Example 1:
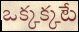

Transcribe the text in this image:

ఒక్కక్కటే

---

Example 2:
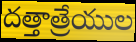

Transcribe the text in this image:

దత్తాత్రేయుల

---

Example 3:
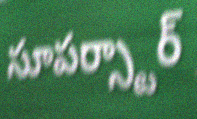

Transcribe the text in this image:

సూపర్స్టార్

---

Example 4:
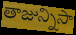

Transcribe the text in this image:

తాజున్నిసా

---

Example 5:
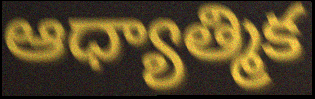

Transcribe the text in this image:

ఆధ్యాత్మిక